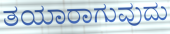
ತಯಾರಾಗುವುದು